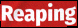
Reaping